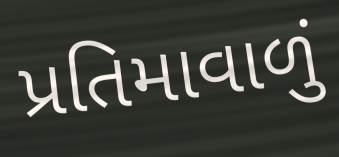
પ્રતિમાવાળું